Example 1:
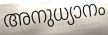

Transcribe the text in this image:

അനുധ്യാനം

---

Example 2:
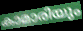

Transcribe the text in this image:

കാമാരിയും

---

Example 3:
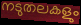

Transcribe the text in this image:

നടുതലകളും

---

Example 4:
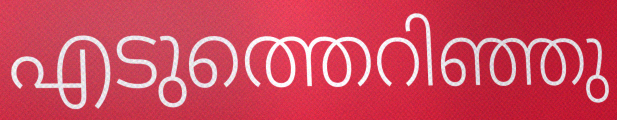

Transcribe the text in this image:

എടുത്തെറിഞ്ഞു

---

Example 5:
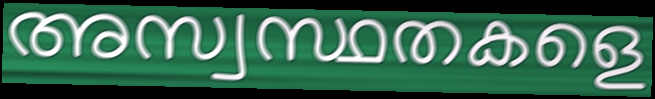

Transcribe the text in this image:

അസ്വസ്ഥതകളെ